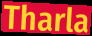
Tharla